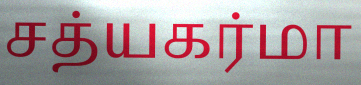
சத்யகர்மா